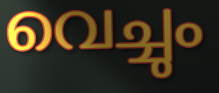
വെച്ചും